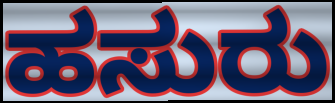
ಹಸುರು